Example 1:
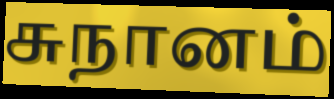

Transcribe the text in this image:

சுநானம்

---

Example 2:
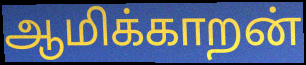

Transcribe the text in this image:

ஆமிக்காறன்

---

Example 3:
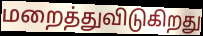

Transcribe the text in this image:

மறைத்துவிடுகிறது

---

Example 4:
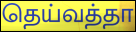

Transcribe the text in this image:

தெய்வத்தா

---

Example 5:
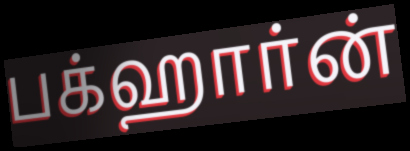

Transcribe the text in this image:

பக்ஹார்ன்